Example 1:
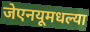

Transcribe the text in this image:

जेएनयूमधल्या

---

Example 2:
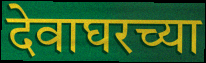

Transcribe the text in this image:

देवाघरच्या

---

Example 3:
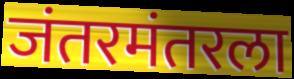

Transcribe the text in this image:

जंतरमंतरला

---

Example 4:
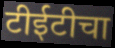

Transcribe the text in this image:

टीईटीचा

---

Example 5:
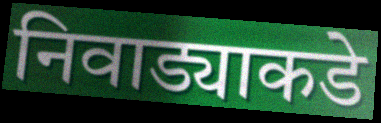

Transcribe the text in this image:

निवाड्याकडे